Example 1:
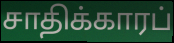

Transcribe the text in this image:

சாதிக்காரப்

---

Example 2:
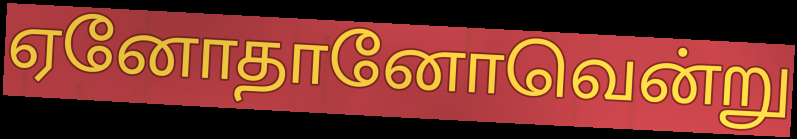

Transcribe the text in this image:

ஏனோதானோவென்று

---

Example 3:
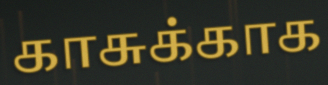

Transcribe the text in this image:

காசுக்காக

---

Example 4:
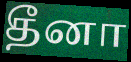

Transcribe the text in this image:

தீனா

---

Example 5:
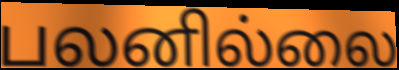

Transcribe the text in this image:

பலனில்லை